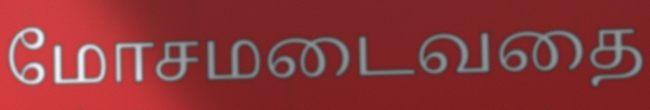
மோசமடைவதை